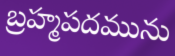
బ్రహ్మపదమును